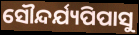
ସୌନ୍ଦର୍ଯ୍ୟପିପାସୁ